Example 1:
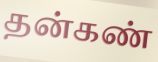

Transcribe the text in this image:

தன்கண்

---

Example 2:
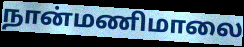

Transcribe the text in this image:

நான்மணிமாலை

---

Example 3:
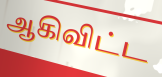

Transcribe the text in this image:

ஆகிவிட்ட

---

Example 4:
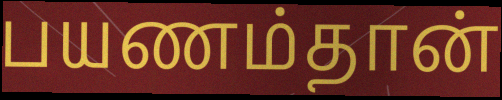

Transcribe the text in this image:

பயணம்தான்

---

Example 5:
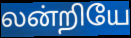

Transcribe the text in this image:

லன்றியே